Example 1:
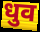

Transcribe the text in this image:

धुव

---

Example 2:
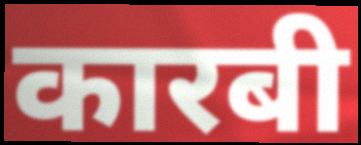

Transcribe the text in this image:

कारबी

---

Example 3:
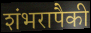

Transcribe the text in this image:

शंभरापैकी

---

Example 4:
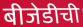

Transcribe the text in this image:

बीजेडीची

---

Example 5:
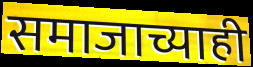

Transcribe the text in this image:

समाजाच्याही